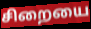
சிறையை